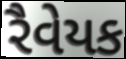
રૈવેયક